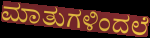
ಮಾತುಗಳಿಂದಲೆ